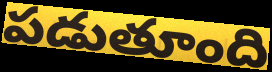
పడుతూంది